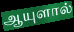
ஆயுளால்